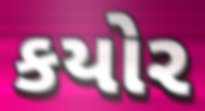
કયોર